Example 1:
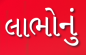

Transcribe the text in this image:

લાભોનું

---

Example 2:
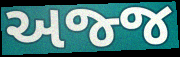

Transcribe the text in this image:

અજ્જ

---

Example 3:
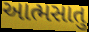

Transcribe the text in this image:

આત્મસાતુ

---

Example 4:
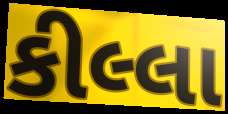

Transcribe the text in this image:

કીલ્લા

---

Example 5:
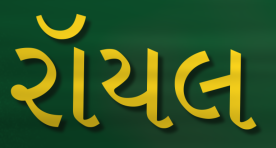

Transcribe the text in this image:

રૉયલ